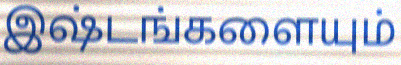
இஷ்டங்களையும்